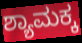
ಶ್ಯಾಮಕ್ಕ